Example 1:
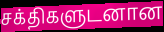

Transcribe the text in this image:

சக்திகளுடனான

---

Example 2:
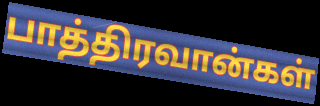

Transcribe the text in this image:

பாத்திரவான்கள்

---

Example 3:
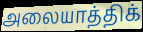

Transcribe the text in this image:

அலையாத்திக்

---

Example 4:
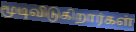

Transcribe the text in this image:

மூடிவிடுகிறார்கள்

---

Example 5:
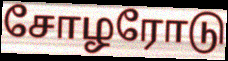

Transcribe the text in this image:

சோழரோடு